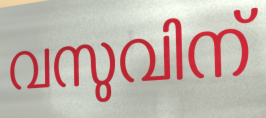
വസുവിന്